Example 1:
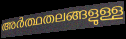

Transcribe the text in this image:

അർത്ഥതലങ്ങളുള്ള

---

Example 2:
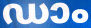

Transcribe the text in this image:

ഡാം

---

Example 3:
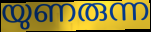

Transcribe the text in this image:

യുണരുന്ന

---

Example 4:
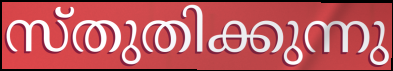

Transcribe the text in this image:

സ്തുതിക്കുന്നു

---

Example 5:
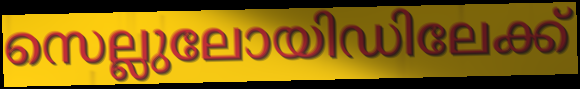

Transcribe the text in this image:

സെല്ലുലോയിഡിലേക്ക്